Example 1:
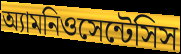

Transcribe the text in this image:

অ্যামনিওসেন্টেসিস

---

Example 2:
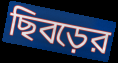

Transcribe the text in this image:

ছিবড়ের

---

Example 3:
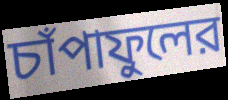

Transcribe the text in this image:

চাঁপাফুলের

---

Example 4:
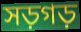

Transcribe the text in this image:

সড়গড়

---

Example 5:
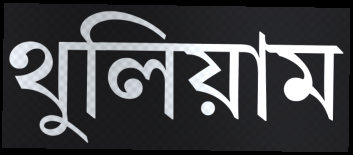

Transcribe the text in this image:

থুলিয়াম